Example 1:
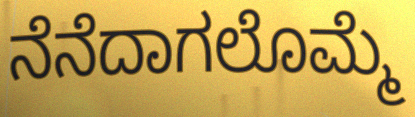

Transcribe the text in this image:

ನೆನೆದಾಗಲೊಮ್ಮೆ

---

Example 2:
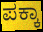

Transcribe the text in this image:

ಪಕ್ಕಾ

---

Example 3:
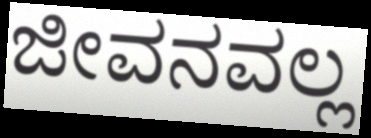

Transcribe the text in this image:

ಜೀವನವಲ್ಲ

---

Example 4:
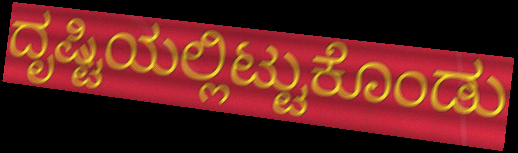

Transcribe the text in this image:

ದೃಷ್ಟಿಯಲ್ಲಿಟ್ಟುಕೊಂಡು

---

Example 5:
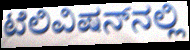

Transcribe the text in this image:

ಟೆಲಿವಿಷನ್‌ನಲ್ಲಿ